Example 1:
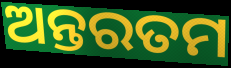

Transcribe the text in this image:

ଅନ୍ତରତମ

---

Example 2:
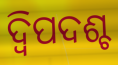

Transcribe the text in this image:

ଦ୍ବିପଦଶ୍ଚ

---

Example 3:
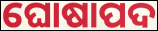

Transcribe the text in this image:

ଘୋଷାପଦ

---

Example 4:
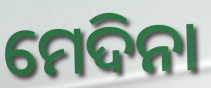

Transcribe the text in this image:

ମେଦିନା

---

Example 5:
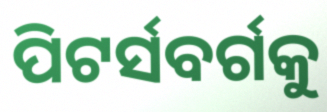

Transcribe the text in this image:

ପିଟର୍ସବର୍ଗକୁ